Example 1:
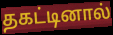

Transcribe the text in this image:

தகட்டினால்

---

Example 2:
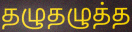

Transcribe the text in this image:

தழுதழுத்த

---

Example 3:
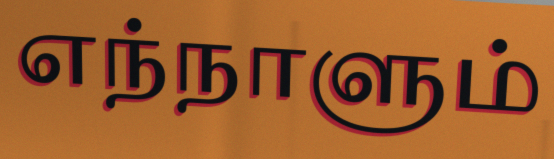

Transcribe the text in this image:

எந்நாளும்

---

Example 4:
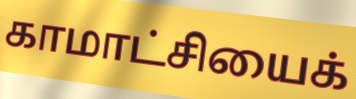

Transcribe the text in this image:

காமாட்சியைக்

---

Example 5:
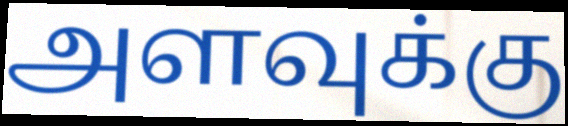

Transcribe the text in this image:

அளவுக்கு